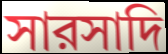
সারসাদি